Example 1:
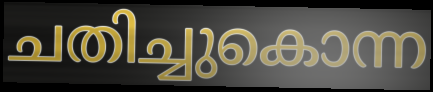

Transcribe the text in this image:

ചതിച്ചുകൊന്ന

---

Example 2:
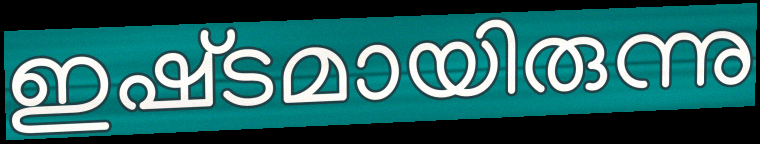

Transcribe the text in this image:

ഇഷ്‌ടമായിരുന്നു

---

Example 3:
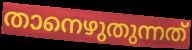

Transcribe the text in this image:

താനെഴുതുന്നത്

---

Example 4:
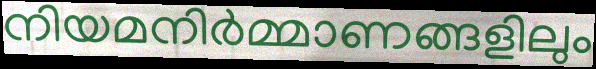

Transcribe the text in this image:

നിയമനിർമ്മാണങ്ങളിലും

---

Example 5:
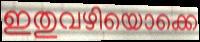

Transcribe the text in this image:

ഇതുവഴിയൊക്കെ